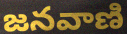
జనవాణి